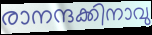
രാനന്ദക്കിനാവു